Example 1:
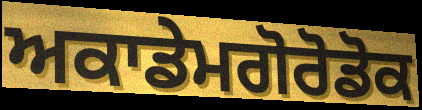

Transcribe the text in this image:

ਅਕਾਡੇਮਗੋਰੋਡੋਕ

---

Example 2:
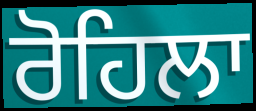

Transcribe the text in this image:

ਰੋਹਿਲਾ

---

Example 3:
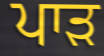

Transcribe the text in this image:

ਪਾੜ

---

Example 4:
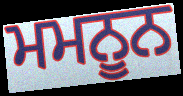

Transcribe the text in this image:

ਮਮਨੂਨ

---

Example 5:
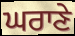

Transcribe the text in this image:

ਘਰਾਣੇ